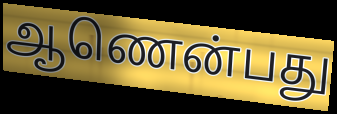
ஆணென்பது